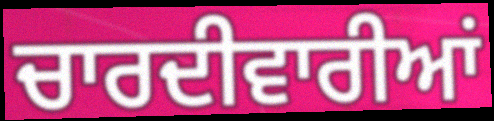
ਚਾਰਦੀਵਾਰੀਆਂ